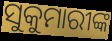
ସୁକୁମାରୀଙ୍କ